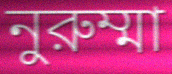
নুরুম্মা